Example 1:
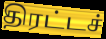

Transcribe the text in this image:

திரட்டச்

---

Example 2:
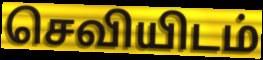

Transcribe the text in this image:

செவியிடம்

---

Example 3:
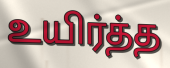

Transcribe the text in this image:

உயிர்த்த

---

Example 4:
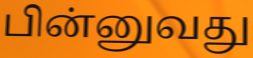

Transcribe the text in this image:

பின்னுவது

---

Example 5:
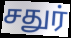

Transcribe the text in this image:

சதுர்